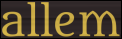
allem